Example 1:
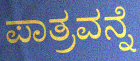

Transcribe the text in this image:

ಪಾತ್ರವನ್ನೆ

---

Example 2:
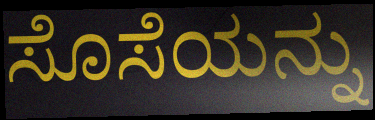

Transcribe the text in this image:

ಸೊಸೆಯನ್ನು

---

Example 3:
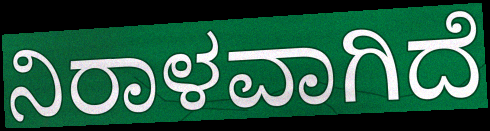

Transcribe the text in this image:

ನಿರಾಳವಾಗಿದೆ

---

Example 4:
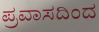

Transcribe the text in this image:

ಪ್ರವಾಸದಿಂದ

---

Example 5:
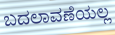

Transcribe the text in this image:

ಬದಲಾವಣೆಯಲ್ಲ